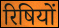
रिषियों